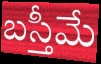
బస్తీమే